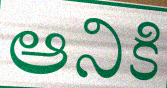
ఆనికి